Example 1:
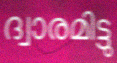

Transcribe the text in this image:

ദ്വാരമിട്ടു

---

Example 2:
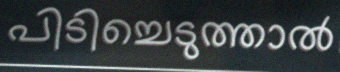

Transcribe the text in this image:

പിടിച്ചെടുത്താൽ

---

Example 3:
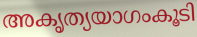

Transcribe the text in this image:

അകൃത്യയാഗംകൂടി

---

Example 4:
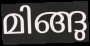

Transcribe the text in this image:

മിങ്ങു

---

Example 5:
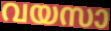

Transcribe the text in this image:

വയസാ